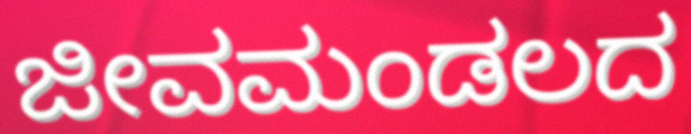
ಜೀವಮಂಡಲದ